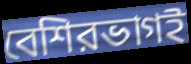
বেশিরভাগই